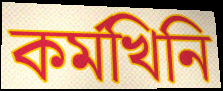
কৰ্মখিনি